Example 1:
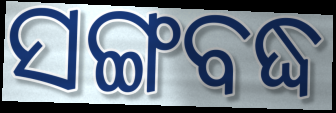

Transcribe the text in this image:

ସଙ୍ଗବଦ୍ଧ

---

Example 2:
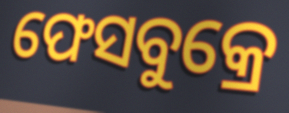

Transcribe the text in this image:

ଫେସବୁକ୍ରେ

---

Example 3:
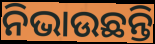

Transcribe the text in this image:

ନିଭାଉଛନ୍ତି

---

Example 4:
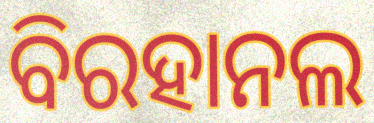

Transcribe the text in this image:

ବିରହାନଲ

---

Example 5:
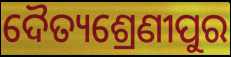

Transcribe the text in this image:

ଦୈତ୍ୟଶ୍ରେଣୀପୁର